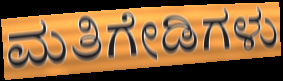
ಮತಿಗೇಡಿಗಳು